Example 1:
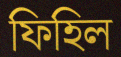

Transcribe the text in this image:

ফিহিল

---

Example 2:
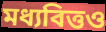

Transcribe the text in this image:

মধ্যবিত্তও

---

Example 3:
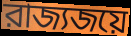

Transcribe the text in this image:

রাজ্যজয়ে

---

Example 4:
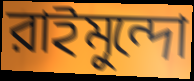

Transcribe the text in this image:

রাইমুন্দো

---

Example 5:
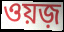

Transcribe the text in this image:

ওয়জ়